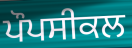
ਪੌਪਸੀਕਲ